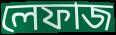
লেফাজ